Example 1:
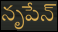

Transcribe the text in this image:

నృపేన్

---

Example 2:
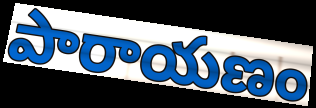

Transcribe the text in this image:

పారాయణం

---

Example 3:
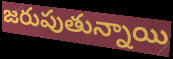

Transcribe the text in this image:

జరుపుతున్నాయి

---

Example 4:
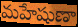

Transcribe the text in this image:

మహేషుణా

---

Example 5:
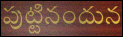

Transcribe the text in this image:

పుట్టినందున